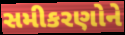
સમીકરણોને